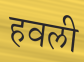
हवली